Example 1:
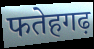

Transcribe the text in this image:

फतेहगढ़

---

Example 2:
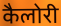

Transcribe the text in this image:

कैलोरी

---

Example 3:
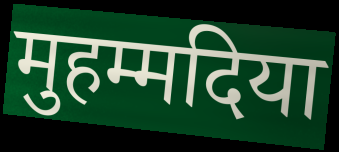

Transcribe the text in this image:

मुहम्मदिया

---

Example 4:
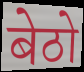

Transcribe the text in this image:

बेठो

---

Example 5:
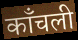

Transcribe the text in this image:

काँचली